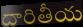
దారితీయ